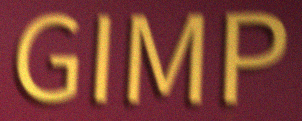
GIMP